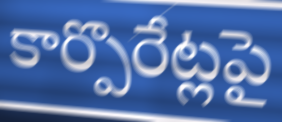
కార్పొరేట్లపై